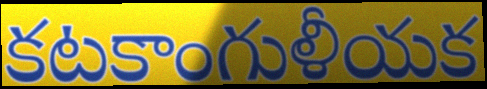
కటకాంగుళీయక